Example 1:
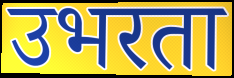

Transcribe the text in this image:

उभरता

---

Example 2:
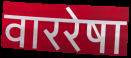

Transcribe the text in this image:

वाररेषा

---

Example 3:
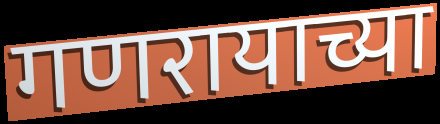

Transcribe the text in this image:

गणरायाच्या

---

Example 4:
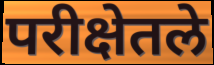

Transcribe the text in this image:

परीक्षेतले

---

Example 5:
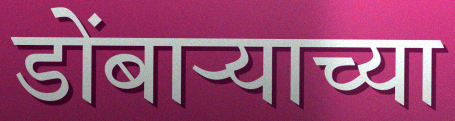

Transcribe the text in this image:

डोंबाऱ्याच्या